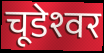
चूडेश्वर